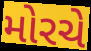
મોરચે